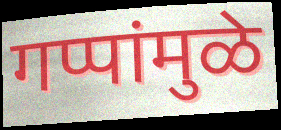
गप्पांमुळे